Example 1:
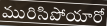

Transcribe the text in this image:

మురిసిపోయారో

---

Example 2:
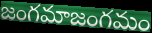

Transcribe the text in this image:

జంగమాజంగమం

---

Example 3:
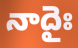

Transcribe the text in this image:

నాదైః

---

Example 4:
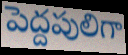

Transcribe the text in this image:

పెద్దపులిగా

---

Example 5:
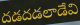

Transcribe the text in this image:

దడదడలాడేవి